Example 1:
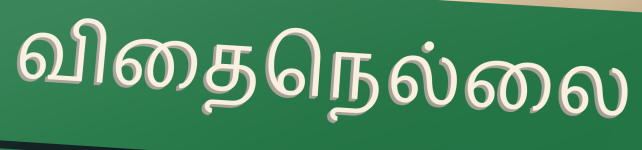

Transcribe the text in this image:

விதைநெல்லை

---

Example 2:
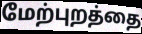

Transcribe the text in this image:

மேற்புறத்தை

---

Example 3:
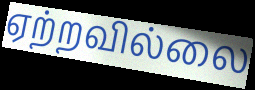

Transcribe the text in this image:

ஏற்றவில்லை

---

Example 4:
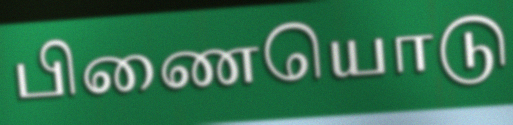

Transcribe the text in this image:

பிணையொடு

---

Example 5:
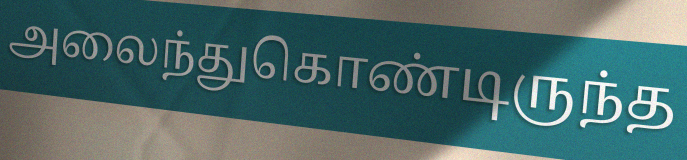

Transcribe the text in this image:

அலைந்துகொண்டிருந்த